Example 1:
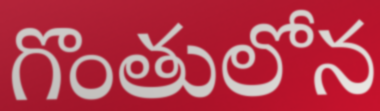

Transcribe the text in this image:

గొంతులోన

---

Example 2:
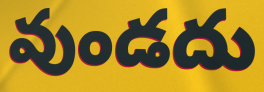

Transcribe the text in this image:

వుండదు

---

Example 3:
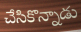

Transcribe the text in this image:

చేసికొన్నాడు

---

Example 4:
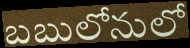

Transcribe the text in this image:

బబులోనులో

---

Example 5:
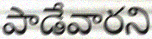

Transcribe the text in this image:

పాడేవారని